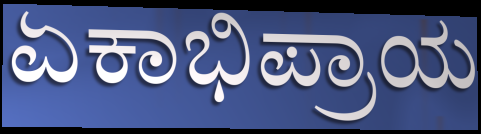
ಏಕಾಭಿಪ್ರಾಯ